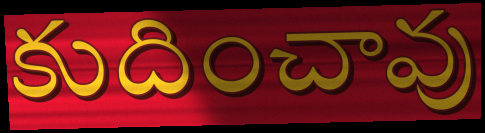
కుదించావు